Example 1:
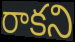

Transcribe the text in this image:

రాకని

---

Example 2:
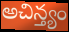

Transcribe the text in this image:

అచిన్త్యం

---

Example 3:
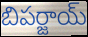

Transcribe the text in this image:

బిపర్జాయ్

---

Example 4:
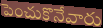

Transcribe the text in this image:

పెంచుకొనేవారు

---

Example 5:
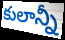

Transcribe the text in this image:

కులాన్నీ